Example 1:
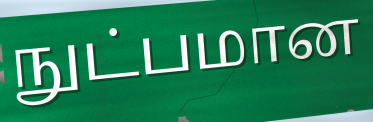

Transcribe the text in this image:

நுட்பமான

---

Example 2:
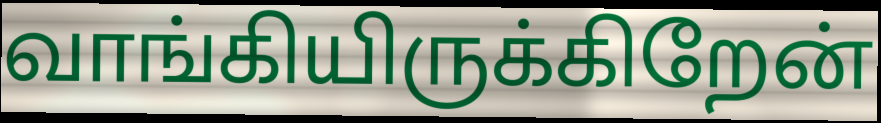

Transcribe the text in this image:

வாங்கியிருக்கிறேன்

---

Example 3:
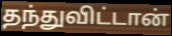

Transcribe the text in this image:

தந்துவிட்டான்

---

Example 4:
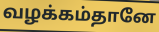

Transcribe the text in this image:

வழக்கம்தானே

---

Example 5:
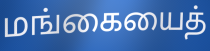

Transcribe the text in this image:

மங்கையைத்